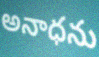
అనాధను